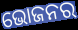
ଭୋଜନର